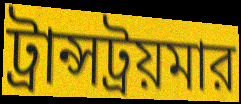
ট্রান্সট্রয়মার